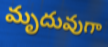
మృదువుగా